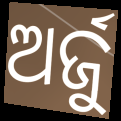
ଅର୍ଜୁ